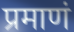
प्रमाणं